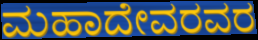
ಮಹಾದೇವರವರ